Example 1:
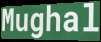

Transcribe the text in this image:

Mughal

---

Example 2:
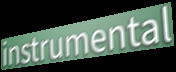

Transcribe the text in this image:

instrumental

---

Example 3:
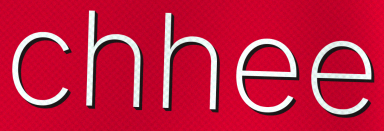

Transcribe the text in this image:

chhee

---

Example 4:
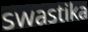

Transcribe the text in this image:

swastika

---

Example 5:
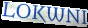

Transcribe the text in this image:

LOKWNI